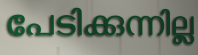
പേടിക്കുന്നില്ല